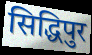
सिद्धिपुर